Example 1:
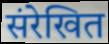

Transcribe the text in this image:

संरेखित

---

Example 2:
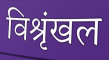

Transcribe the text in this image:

विश्रृंखल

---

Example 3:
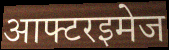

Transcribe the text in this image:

आफ्टरइमेज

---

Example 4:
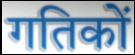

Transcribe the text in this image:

गतिकों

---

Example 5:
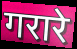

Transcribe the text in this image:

गरारे